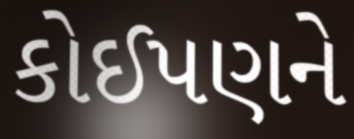
કોઈપણને